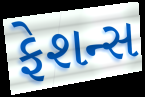
ફેશન્સ